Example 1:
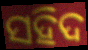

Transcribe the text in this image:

ସହିଦ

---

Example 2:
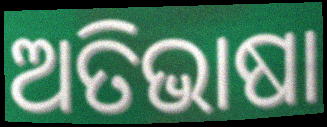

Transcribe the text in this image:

ଅତିଭାଷା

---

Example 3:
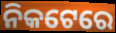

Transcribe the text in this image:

ନିକଟେରେ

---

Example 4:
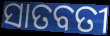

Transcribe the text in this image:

ସାତବତୀ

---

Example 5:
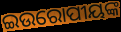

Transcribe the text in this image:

ଇଉରୋପୀୟଙ୍କ